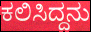
ಕಲಿಸಿದ್ದನು